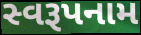
સ્વરૂપનામ